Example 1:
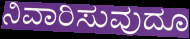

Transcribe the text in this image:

ನಿವಾರಿಸುವುದೂ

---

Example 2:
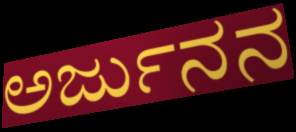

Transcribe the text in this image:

ಅರ್ಜುನನ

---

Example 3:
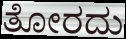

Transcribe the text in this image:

ತೋರದು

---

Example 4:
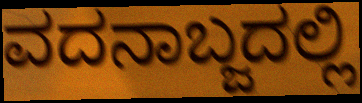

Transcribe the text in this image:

ವದನಾಬ್ಜದಲ್ಲಿ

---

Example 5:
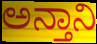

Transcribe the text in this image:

ಅನ್ತಾನಿ